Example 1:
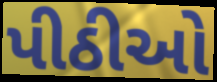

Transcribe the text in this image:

પીઠીઓ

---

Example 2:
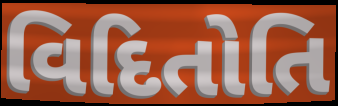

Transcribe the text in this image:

વિદિતોતિ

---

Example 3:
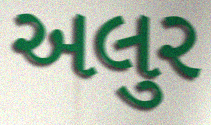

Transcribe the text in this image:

અલુર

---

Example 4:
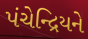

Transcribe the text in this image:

પંચેન્દ્રિયને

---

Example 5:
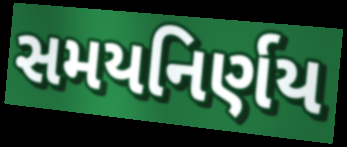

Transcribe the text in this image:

સમયનિર્ણય